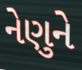
નેણુને